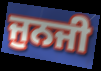
ਜੁਨਜੀ